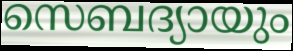
സെബദ്യായും